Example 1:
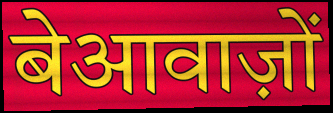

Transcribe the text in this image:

बेआवाज़ों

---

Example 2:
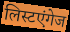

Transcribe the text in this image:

लिस्टएंगेज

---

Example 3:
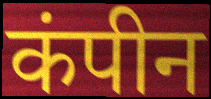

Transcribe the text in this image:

कंपीन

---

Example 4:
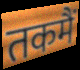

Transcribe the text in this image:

तकमैं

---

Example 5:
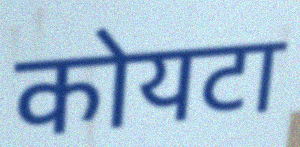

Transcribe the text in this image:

कोयटा